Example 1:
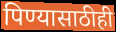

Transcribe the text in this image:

पिण्यासाठीही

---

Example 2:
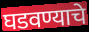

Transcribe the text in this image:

घडवण्याचे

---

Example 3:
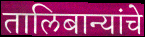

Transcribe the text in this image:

तालिबान्यांचे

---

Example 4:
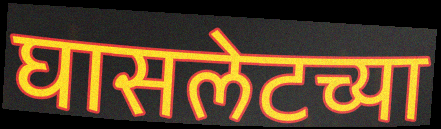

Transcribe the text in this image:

घासलेटच्या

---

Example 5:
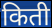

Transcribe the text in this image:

किती